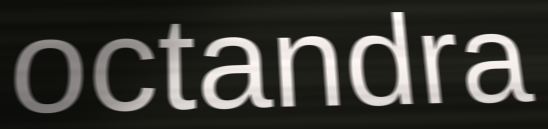
octandra